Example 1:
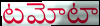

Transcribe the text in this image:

టమోటా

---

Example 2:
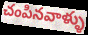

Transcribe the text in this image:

చంపినవాళ్ళు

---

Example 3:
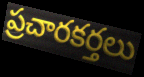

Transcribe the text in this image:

ప్రచారకర్తలు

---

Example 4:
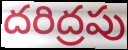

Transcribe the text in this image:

దరిద్రపు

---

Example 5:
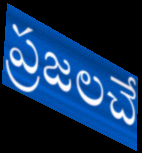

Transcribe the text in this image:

ప్రజలచే